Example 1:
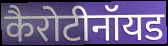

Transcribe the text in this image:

कैरोटीनॉयड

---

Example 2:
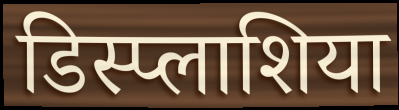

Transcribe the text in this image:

डिस्प्लाशिया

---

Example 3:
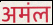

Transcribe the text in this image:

अमंल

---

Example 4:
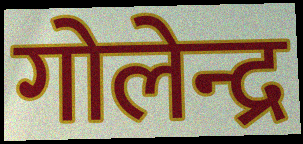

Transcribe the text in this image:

गोलेन्द्र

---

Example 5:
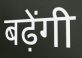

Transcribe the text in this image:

बढ़ेंगी